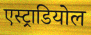
एस्ट्राडियोल